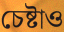
চেষ্টাও